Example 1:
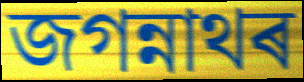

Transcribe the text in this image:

জগন্নাথৰ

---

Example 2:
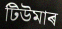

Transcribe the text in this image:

টিউমাৰ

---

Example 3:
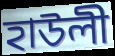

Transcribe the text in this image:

হাউলী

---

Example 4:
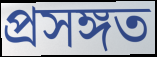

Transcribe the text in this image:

প্ৰসঙ্গত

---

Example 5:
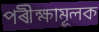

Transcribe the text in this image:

পৰীক্ষামূলক